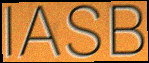
IASB